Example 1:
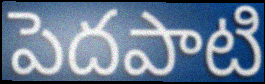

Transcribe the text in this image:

పెదపాటి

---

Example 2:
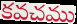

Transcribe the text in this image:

కవచము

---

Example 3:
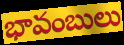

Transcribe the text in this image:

భావంబులు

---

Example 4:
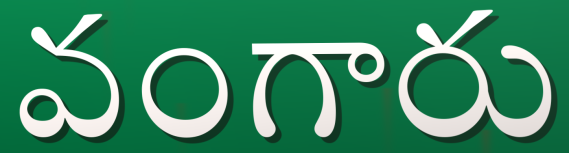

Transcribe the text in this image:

వంగారు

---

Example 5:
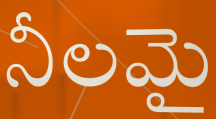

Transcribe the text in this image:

నీలమై